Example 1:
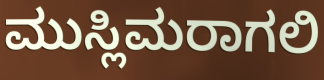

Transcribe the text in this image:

ಮುಸ್ಲಿಮರಾಗಲಿ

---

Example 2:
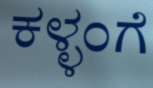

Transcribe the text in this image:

ಕಳ್ಳಂಗೆ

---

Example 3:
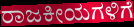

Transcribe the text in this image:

ರಾಜಕೀಯಗಳಿಗೆ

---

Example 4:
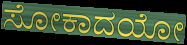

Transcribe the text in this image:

ಸೋಕಾದಯೋ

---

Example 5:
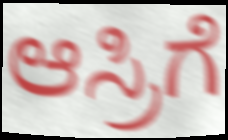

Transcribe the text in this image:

ಆಸ್ರಿಗೆ